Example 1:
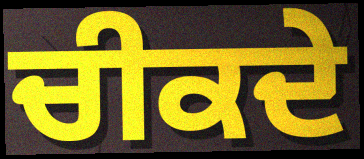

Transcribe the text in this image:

ਚੀਕਦੇ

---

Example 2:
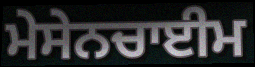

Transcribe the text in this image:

ਮੇਸੇਨਚਾਈਮ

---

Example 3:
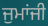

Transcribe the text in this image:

ਜੁਮਾਂਜੀ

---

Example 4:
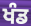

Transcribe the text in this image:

ਖੰਡ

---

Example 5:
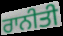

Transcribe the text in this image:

ਰਾਨੀਤੀ